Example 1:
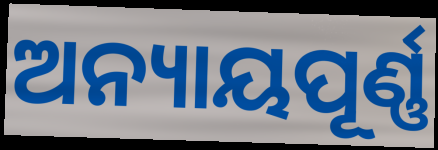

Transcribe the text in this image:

ଅନ୍ୟାୟପୂର୍ଣ୍ଣ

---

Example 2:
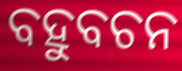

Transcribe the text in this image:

ବହୁବଚନ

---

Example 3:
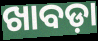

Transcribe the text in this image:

ଖାବଡ଼ା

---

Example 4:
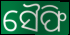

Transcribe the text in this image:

ସୈଫି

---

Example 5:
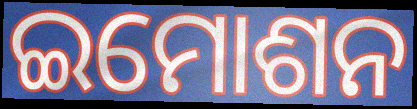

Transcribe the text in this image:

ଇମୋଶନ